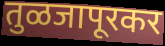
तुळजापूरकर